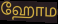
ஹோம